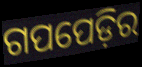
ଗପପେଡ଼ିର